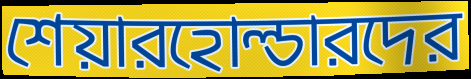
শেয়ারহোল্ডারদের